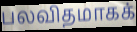
பலவிதமாகக்